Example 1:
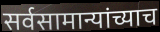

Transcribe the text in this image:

सर्वसामान्यांच्याच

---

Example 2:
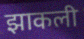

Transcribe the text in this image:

झाकली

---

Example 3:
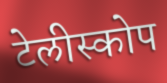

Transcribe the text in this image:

टेलीस्कोप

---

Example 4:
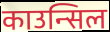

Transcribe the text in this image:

काउन्सिल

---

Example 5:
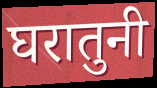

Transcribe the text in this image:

घरातुनी